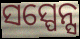
ସସ୍ପେନ୍ସ